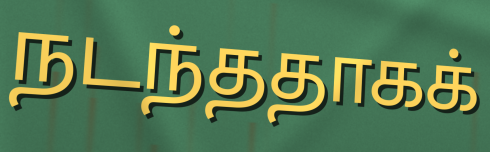
நடந்ததாகக்